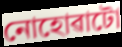
নোহোৱাটো